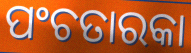
ପଂଚତାରକା